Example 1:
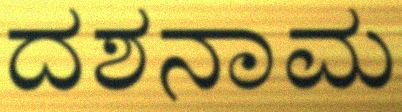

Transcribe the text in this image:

ದಶನಾಮ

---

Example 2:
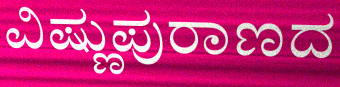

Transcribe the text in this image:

ವಿಷ್ಣುಪುರಾಣದ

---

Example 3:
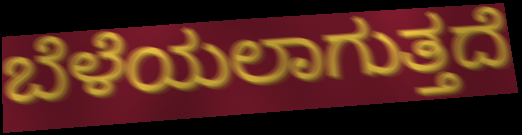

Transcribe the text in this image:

ಬೆಳೆಯಲಾಗುತ್ತದೆ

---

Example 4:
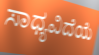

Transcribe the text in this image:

ಸಾಧ್ಯವಿದೆಯೆ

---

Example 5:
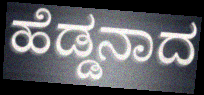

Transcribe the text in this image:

ಹೆಡ್ಡನಾದ